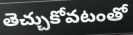
తెచ్చుకోవటంతో